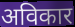
अविकार